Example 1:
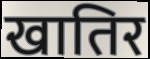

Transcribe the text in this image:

खातिर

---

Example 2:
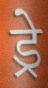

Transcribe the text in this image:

ड्रे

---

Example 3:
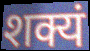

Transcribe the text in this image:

शक्यं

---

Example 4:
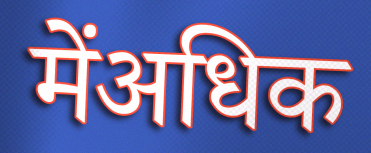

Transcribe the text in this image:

मेंअधिक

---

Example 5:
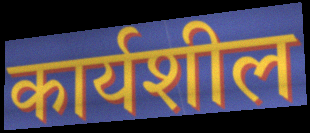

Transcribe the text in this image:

कार्यशील